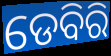
ଡେବିରି